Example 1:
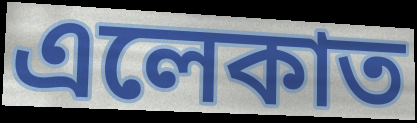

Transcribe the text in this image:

এলেকাত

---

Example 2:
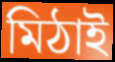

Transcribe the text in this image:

মিঠাই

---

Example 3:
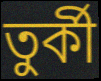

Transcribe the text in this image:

তুৰ্কী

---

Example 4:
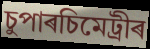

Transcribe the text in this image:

চুপাৰচিমেট্ৰীৰ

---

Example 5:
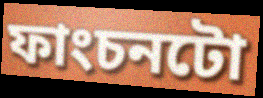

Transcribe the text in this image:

ফাংচনটো